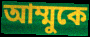
আম্মুকে